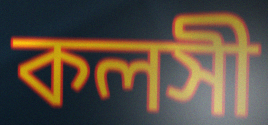
কলসী